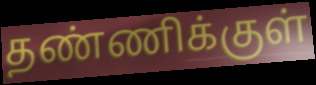
தண்ணிக்குள்